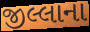
જીલ્લાના